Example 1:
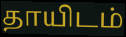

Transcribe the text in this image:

தாயிடம்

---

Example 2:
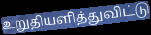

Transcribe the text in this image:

உறுதியளித்துவிட்டு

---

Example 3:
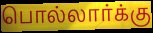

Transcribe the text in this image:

பொல்லார்க்கு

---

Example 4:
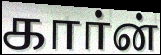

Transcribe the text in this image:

கார்ன்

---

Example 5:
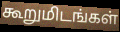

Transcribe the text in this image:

கூறுமிடங்கள்